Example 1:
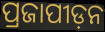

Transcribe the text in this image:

ପ୍ରଜାପୀଡ଼ନ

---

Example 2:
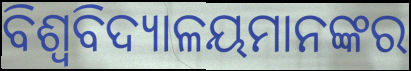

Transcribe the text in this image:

ବିଶ୍ଵବିଦ୍ୟାଳୟମାନଙ୍କର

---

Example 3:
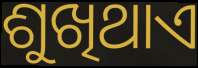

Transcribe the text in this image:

ଶୁଖିଥାଏ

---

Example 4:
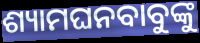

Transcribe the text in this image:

ଶ୍ୟାମଘନବାବୁଙ୍କୁ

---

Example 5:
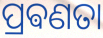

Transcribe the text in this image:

ପ୍ରଵଣତା